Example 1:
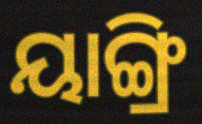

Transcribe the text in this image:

ୟାଙ୍ଗ୍ରି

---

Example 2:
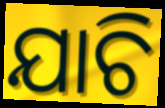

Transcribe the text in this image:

ଯାଚି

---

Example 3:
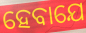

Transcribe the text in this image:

ହେବାଯେ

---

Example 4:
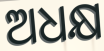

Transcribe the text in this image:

ଅଧକ୍ଷ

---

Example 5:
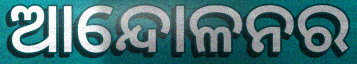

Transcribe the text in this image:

ଆନ୍ଦୋଳନର